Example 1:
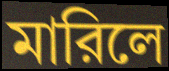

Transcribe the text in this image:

মারিলে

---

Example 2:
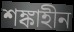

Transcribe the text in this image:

শঙ্কাহীন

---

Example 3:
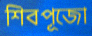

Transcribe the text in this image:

শিবপূজো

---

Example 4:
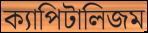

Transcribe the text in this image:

ক্যাপিটালিজম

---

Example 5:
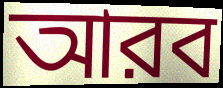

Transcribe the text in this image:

আরব